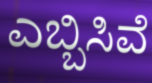
ಎಬ್ಬಿಸಿವೆ